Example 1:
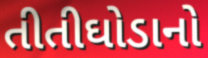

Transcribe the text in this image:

તીતીઘોડાનો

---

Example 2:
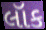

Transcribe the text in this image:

લૉક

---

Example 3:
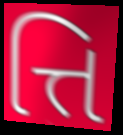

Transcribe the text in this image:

ત્તિ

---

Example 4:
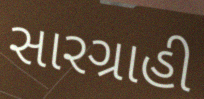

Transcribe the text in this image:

સારગ્રાહી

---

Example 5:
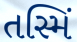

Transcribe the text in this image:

તસ્મિં